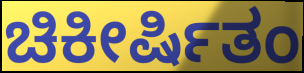
ಚಿಕೀರ್ಷಿತಂ